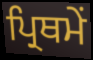
ਪ੍ਰਿਥਮੇਂ